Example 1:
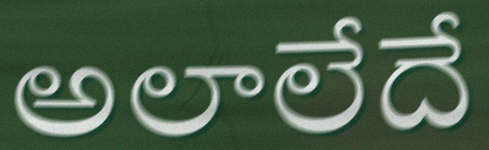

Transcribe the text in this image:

అలాలేదే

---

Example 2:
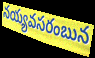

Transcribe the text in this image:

నయ్యవసరంబున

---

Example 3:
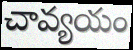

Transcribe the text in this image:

చావ్యయం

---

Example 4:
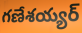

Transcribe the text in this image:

గణేశయ్యర్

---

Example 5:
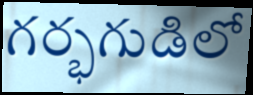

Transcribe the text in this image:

గర్భగుడిలో